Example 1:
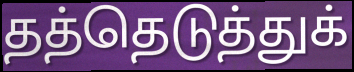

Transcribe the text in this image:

தத்தெடுத்துக்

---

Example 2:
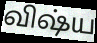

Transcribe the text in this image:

விஷ்ய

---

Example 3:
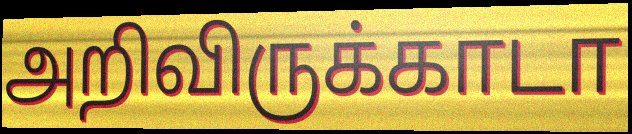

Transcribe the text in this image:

அறிவிருக்காடா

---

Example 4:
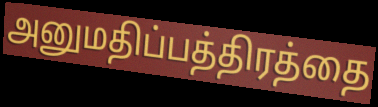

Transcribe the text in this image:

அனுமதிப்பத்திரத்தை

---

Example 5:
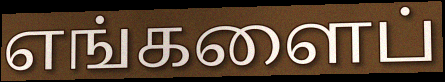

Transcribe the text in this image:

எங்களைப்